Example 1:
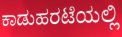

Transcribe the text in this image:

ಕಾಡುಹರಟೆಯಲ್ಲಿ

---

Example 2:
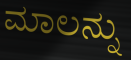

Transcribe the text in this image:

ಮಾಲನ್ನು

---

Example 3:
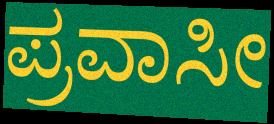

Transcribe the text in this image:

ಪ್ರವಾಸೀ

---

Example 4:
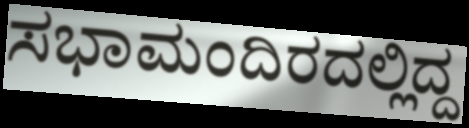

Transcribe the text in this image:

ಸಭಾಮಂದಿರದಲ್ಲಿದ್ದ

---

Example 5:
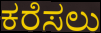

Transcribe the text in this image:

ಕರೆಸಲು